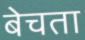
बेचता